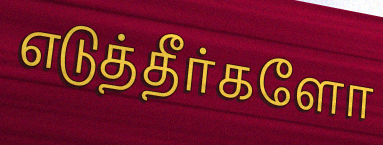
எடுத்தீர்களோ